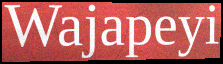
Wajapeyi